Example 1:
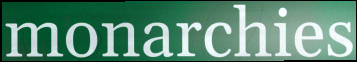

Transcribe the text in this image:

monarchies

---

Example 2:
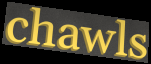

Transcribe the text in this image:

chawls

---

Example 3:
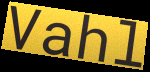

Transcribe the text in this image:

Vahl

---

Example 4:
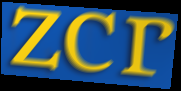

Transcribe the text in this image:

zcr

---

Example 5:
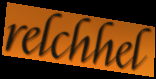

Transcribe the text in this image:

relchhel